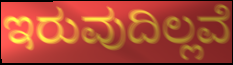
ಇರುವುದಿಲ್ಲವೆ